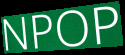
NPOP